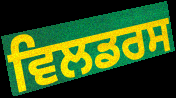
ਵਿਲਡਰਸ